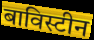
बाविस्टीन